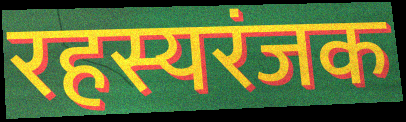
रहस्यरंजक